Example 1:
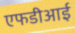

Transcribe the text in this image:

एफडीआई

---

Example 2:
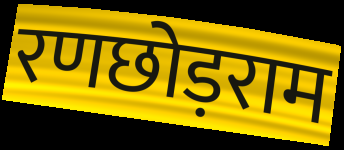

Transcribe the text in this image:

रणछोड़राम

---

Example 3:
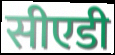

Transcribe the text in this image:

सीएडी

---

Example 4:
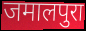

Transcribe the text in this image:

जमालपुरा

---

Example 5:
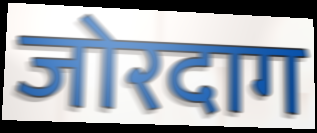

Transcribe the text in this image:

जोरदाग